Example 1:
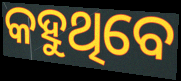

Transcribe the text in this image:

କହୁଥିବେ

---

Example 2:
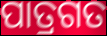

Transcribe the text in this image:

ପାତ୍ରଗତ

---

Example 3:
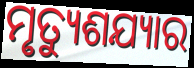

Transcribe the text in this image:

ମୃତ୍ୟୁଶଯ୍ୟାର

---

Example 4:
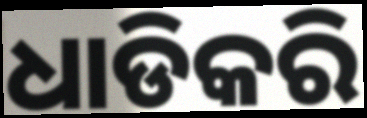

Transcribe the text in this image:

ଧାଡିକରି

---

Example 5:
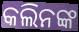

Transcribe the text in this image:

କଲିନଙ୍କ